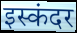
इस्कंदर